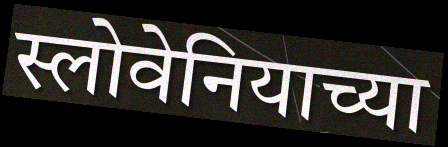
स्लोवेनियाच्या